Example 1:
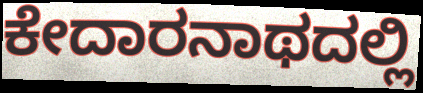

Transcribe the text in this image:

ಕೇದಾರನಾಥದಲ್ಲಿ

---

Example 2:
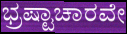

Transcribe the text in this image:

ಭ್ರಷ್ಟಾಚಾರವೇ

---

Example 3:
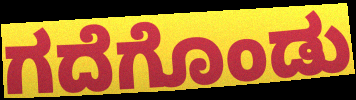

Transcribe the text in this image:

ಗದೆಗೊಂಡು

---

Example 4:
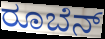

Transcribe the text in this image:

ರೂಬೆನ್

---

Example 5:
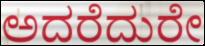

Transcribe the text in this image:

ಅದರೆದುರೇ